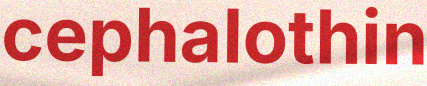
cephalothin